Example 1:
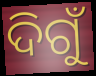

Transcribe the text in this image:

ଦିଗୁଁ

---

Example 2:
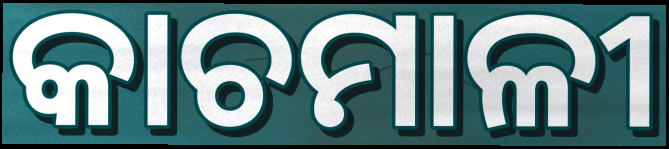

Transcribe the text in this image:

କାଚମାଳୀ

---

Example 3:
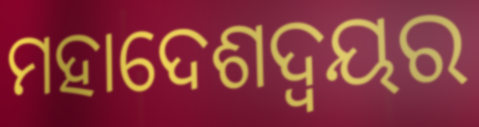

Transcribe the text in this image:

ମହାଦେଶଦ୍ଵୟର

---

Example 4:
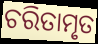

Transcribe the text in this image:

ଚରିତାମୃତ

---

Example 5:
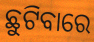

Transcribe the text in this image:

ଛୁଟିବାରେ